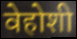
वेहोशी